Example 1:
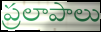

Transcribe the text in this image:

ప్రలాపాలు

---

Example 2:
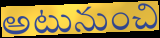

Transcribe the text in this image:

అటునుంచి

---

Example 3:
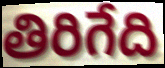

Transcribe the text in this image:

తిరిగేది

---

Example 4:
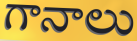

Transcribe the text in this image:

గానాలు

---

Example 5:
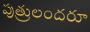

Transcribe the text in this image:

పుత్రులందరూ